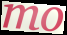
mo